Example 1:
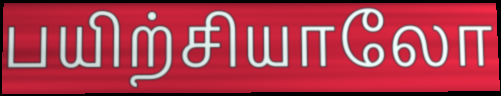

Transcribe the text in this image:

பயிற்சியாலோ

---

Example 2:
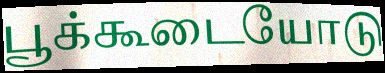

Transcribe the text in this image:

பூக்கூடையோடு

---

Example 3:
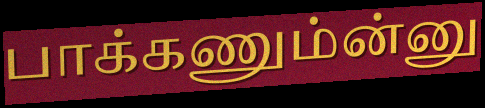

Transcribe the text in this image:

பாக்கணும்ன்னு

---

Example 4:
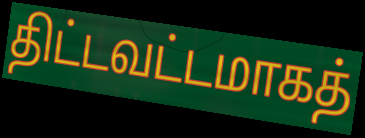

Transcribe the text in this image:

திட்டவட்டமாகத்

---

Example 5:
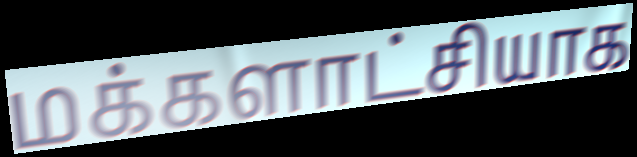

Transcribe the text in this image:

மக்களாட்சியாக